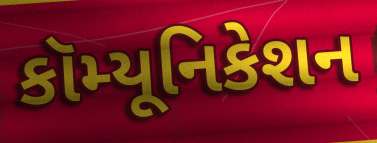
કૉમ્યૂનિકેશન